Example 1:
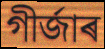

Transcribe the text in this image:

গীৰ্জাৰ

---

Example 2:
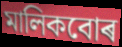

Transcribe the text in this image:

মালিকবোৰ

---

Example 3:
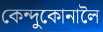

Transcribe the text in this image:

কেন্দুকোনালৈ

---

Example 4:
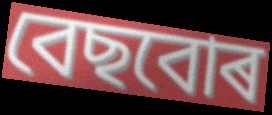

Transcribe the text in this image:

বেছবোৰ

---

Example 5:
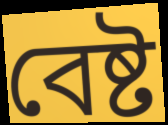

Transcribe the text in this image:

বেষ্ট